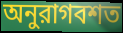
অনুরাগবশত